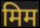
मिम